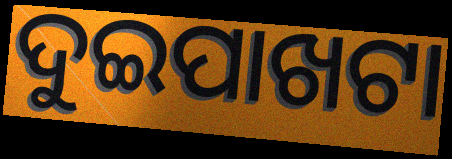
ଦୁଇପାଖଟା